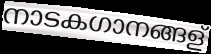
നാടകഗാനങ്ങള്